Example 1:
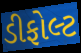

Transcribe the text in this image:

ડીફોલ્ટ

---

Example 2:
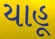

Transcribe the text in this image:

યાહૂ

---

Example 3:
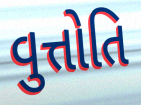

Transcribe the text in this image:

વુત્તોતિ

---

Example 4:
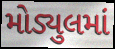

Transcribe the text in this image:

મોડ્યુલમાં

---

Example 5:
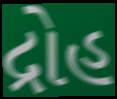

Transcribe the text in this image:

દ્રોહ